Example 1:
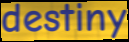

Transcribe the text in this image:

destiny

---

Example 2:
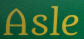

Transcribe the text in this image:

Asle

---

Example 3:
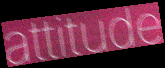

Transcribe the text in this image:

attitude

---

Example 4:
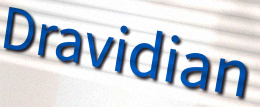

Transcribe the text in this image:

Dravidian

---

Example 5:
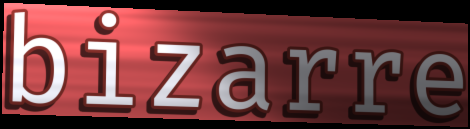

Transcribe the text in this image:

bizarre